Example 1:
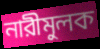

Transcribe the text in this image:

নারীমুলক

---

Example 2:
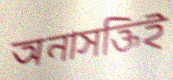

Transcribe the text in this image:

অনাসক্তিই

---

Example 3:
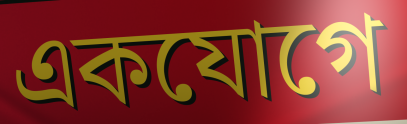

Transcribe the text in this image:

একযোগে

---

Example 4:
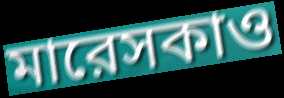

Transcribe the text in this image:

মারেসকাও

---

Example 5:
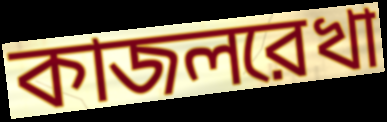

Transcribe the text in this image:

কাজলরেখা